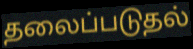
தலைப்படுதல்